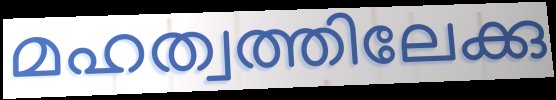
മഹത്വത്തിലേക്കു